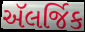
ઍલર્જિક